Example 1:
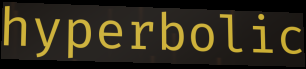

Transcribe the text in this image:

hyperbolic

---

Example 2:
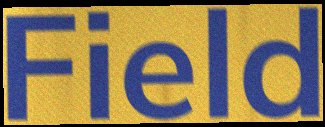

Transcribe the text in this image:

Field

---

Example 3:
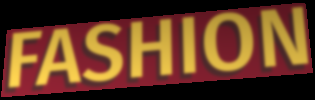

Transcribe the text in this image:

FASHION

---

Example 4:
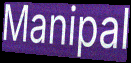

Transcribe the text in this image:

Manipal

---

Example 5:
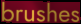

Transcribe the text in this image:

brushes